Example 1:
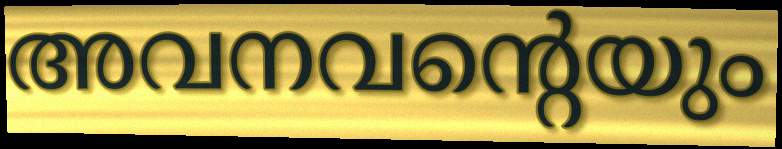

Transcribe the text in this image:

അവനവന്റെയും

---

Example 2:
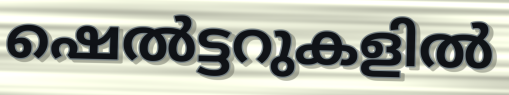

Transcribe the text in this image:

ഷെൽട്ടറുകളിൽ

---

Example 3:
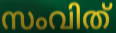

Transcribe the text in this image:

സംവിത്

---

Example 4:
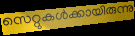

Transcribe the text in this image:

സെറ്റുകൾക്കായിരുന്നു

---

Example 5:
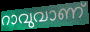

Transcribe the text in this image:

റാവുവാണ്